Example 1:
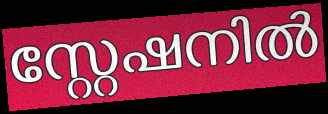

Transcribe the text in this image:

സ്റ്റേഷനിൽ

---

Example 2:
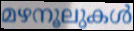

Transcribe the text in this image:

മഴനൂലുകൾ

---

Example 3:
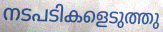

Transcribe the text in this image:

നടപടികളെടുത്തു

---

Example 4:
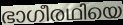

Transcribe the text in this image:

ഭാഗീരഥിയെ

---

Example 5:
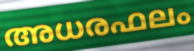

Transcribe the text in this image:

അധരഫലം